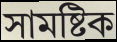
সামষ্টিক